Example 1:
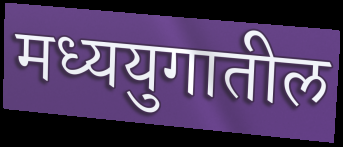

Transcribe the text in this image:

मध्ययुगातील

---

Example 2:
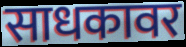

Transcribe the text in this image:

साधकावर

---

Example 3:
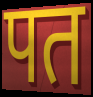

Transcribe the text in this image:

पत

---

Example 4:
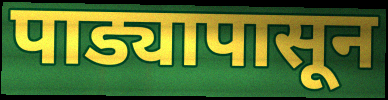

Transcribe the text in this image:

पाड्यापासून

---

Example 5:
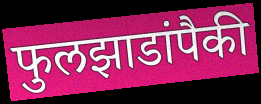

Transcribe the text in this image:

फुलझाडांपैकी